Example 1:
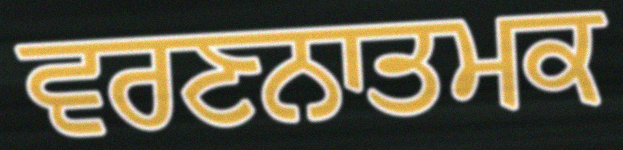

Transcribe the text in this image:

ਵਰਣਨਾਤਮਕ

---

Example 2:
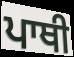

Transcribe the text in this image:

ਪਾਥੀ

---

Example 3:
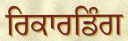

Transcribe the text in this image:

ਰਿਕਾਰਡਿੰਗ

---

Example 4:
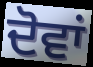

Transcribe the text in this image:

ਦੋਵਾਂ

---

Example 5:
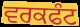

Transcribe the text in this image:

ਵਰਕਫੰਟ